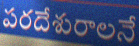
పరదేశురాలనే